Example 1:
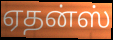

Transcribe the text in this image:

ஏதன்ஸ்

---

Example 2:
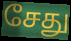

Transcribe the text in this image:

சேது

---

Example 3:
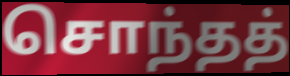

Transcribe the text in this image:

சொந்தத்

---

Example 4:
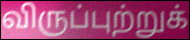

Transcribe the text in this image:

விருப்புற்றுக்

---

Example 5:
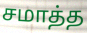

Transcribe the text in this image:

சமாத்த